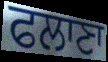
ਫਲਾਣਾ